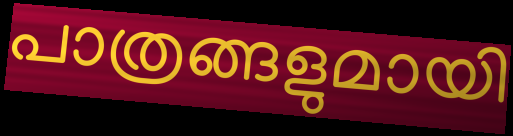
പാത്രങ്ങളുമായി